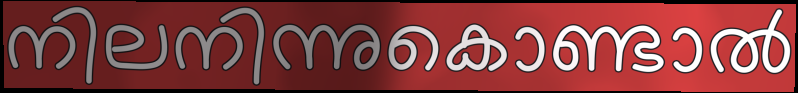
നിലനിന്നുകൊണ്ടാൽ